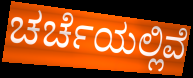
ಚರ್ಚೆಯಲ್ಲಿವೆ